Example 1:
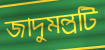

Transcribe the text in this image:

জাদুমন্ত্রটি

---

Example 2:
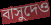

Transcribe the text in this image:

বাসুদেও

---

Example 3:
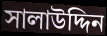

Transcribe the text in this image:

সালাউদ্দিন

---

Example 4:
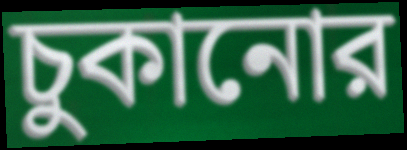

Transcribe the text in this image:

চুকানোর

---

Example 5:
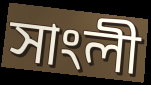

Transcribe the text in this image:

সাংলী